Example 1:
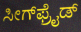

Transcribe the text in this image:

ಸೀಗ್‌ಫ್ರೈಡ್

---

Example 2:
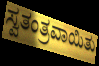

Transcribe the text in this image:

ಸ್ವತಂತ್ರವಾಯಿತು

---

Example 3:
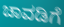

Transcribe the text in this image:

ಚಾವಡಿಗೆ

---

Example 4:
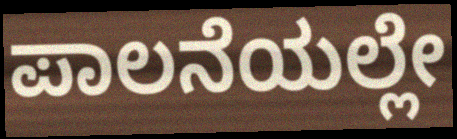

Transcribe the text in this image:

ಪಾಲನೆಯಲ್ಲೇ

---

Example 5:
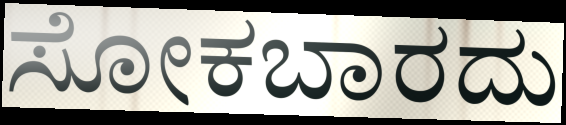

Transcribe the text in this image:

ಸೋಕಬಾರದು